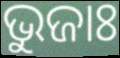
ଭୁଜାଃ